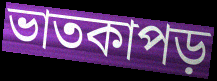
ভাতকাপড়